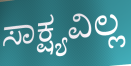
ಸಾಕ್ಷ್ಯವಿಲ್ಲ